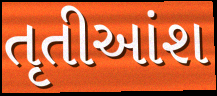
તૃતીઆંશ